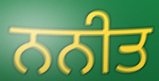
ਨਨੀਤ